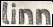
linn